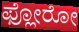
ಫ್ಲೋರೋ